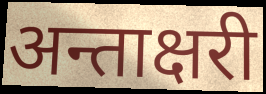
अन्ताक्षरी